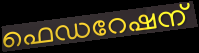
ഫെഡറേഷന്